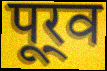
पूर्व